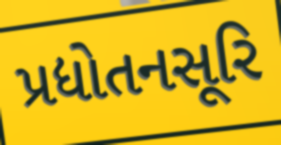
પ્રદ્યોતનસૂરિ